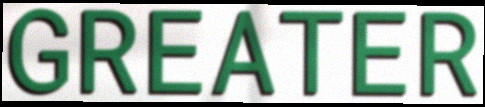
GREATER